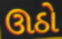
ઊઠો